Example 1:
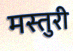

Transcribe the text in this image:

मस्तुरी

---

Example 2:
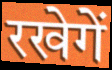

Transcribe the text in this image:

रखेगें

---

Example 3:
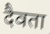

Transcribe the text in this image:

दैवता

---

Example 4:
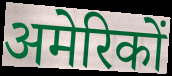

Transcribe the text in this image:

अमेरिकों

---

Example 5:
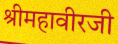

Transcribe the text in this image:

श्रीमहावीरजी